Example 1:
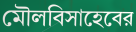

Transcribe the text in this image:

মৌলবিসাহেবের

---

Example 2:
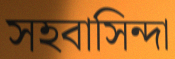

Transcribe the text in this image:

সহবাসিন্দা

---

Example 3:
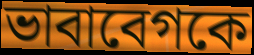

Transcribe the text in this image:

ভাবাবেগকে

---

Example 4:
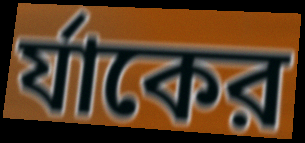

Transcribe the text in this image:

র্যাকের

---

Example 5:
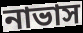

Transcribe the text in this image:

নাভাস